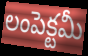
లంపెక్టమీ